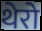
थेरो